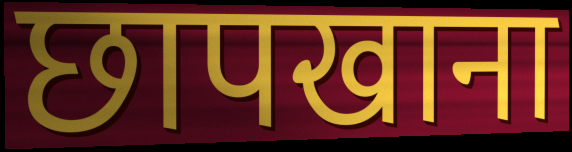
छापखाना